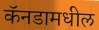
कॅनडामधील